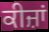
ਕੀਜ਼ਾਂ